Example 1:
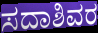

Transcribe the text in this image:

ಸದಾಶಿವರ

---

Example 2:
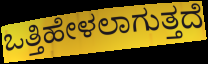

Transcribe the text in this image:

ಒತ್ತಿಹೇಳಲಾಗುತ್ತದೆ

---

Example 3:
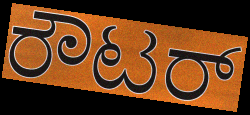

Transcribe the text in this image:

ರೌಟರ್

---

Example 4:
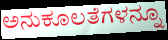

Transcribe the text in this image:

ಅನುಕೂಲತೆಗಳನ್ನೂ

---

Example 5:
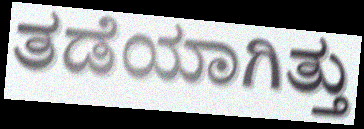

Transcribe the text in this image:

ತಡೆಯಾಗಿತ್ತು